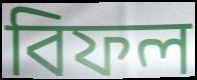
বিফল